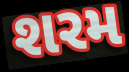
શરમ